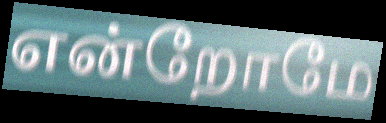
என்றோமே